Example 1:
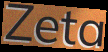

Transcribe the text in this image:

Zeta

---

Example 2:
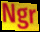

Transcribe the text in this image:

Ngr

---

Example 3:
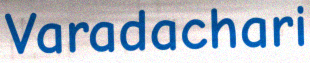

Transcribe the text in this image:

Varadachari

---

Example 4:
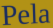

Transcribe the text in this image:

Pela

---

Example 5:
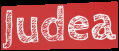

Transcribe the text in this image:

Judea